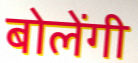
बोलेंगी